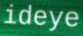
ideye